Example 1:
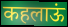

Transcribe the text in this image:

कहलाऊं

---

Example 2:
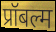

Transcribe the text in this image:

प्रॉबल्म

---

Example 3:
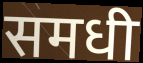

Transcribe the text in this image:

समधी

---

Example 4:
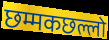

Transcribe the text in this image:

छम्मकछल्लो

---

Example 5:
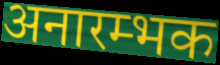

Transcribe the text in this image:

अनारम्भक